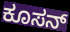
ಕೂಸನ್